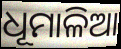
ଧୂମାଳିଆ